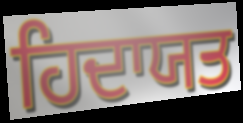
ਹਿਦਾਯਤ